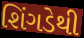
શિંગડેથી